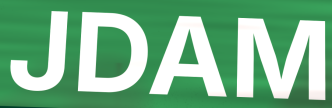
JDAM